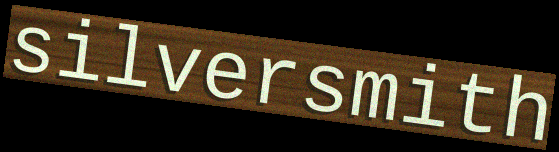
silversmith